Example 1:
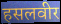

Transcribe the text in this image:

हसलवीर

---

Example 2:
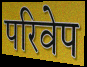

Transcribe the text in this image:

परिवेप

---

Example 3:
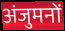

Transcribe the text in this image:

अंजुमनों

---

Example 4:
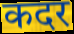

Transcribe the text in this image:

कदर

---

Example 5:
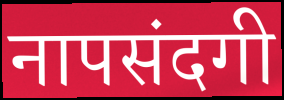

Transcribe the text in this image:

नापसंदगी